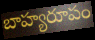
బాహ్యరూపం